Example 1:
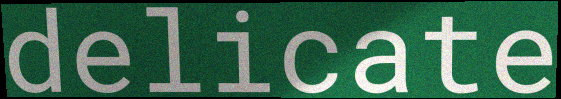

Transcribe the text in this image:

delicate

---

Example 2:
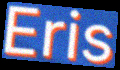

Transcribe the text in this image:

Eris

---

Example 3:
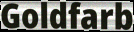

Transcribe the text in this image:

Goldfarb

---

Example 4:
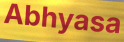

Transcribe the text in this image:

Abhyasa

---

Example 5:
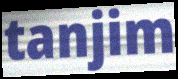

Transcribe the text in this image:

tanjim